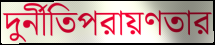
দুর্নীতিপরায়ণতার